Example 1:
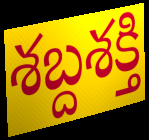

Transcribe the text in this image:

శబ్దశక్తి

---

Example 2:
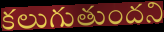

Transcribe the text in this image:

కలుగుతుందని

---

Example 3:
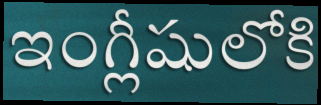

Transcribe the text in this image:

ఇంగ్లీషులోకి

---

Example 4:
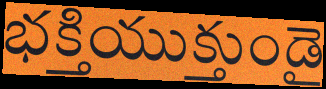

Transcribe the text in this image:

భక్తియుక్తుండై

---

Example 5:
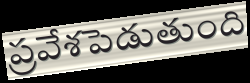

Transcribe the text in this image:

ప్రవేశపెడుతుంది